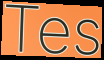
Tes